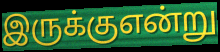
இருக்குஎன்று